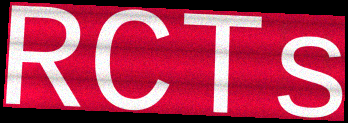
RCTs